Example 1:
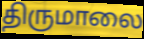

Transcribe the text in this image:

திருமாலை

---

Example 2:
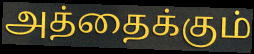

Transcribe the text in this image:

அத்தைக்கும்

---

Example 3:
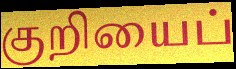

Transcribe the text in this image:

குறியைப்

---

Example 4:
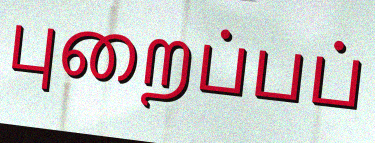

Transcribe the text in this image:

புறைப்பப்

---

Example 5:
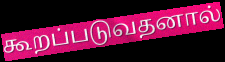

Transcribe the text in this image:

கூறப்படுவதனால்